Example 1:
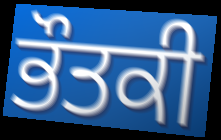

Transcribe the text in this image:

ਭੌਤਕੀ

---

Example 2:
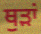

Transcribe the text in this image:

ਥੁੜਾਂ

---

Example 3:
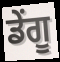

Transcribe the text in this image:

ਡੇਂਗੂ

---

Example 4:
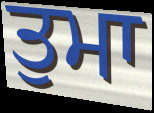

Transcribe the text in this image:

ਤੁਮਾ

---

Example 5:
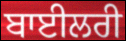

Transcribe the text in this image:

ਬਾਈਲਰੀ